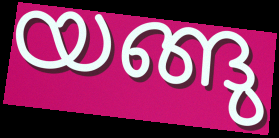
യങ്ങു